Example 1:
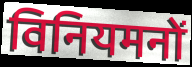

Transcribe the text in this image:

विनियमनों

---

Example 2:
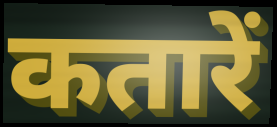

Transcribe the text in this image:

कतारें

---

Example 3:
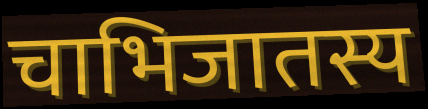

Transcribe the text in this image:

चाभिजातस्य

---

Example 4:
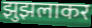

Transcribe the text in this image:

झुझलाकर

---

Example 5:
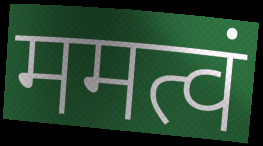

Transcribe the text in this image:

ममत्वं